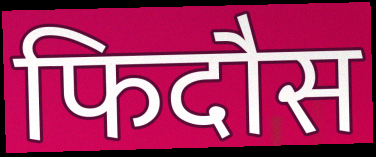
फिदौस